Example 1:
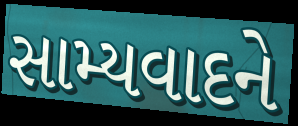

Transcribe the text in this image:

સામ્યવાદને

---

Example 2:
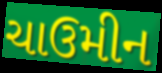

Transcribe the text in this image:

ચાઉમીન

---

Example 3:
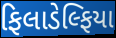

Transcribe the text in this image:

ફિલાડેલ્ફિયા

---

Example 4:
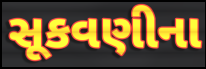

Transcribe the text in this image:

સૂકવણીના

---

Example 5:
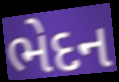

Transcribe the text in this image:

ભેદન